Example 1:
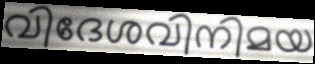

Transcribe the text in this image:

വിദേശവിനിമയ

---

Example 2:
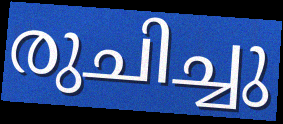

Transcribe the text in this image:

രുചിച്ചു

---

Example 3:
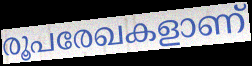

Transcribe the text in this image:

രൂപരേഖകളാണ്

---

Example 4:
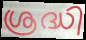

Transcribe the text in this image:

ശ്രദ്ധി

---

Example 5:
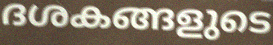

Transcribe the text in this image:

ദശകങ്ങളുടെ